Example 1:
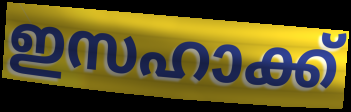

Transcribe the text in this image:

ഇസഹാക്ക്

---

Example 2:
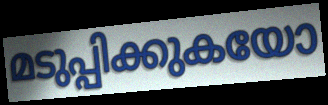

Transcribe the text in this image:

മടുപ്പിക്കുകയോ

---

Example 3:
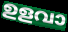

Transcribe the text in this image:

ഉളവാ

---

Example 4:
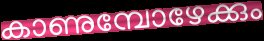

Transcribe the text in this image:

കാണുമ്പോഴേക്കും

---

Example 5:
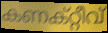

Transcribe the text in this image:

കണക്റ്റീവ്